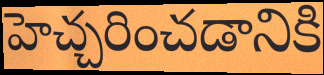
హెచ్చరించడానికి